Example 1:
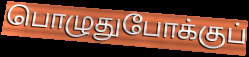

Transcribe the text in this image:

பொழுதுபோக்குப்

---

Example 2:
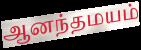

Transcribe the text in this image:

ஆனந்தமயம்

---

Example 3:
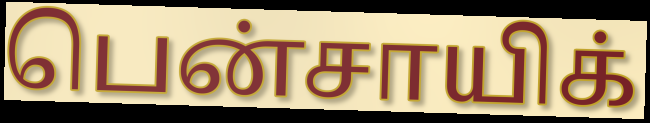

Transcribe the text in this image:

பென்சாயிக்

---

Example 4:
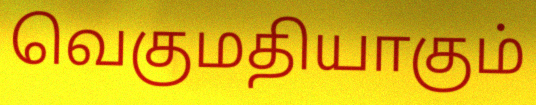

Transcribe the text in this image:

வெகுமதியாகும்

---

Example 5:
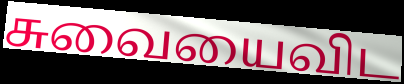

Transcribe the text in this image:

சுவையைவிட